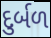
દુર્બળ